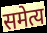
समेत्य